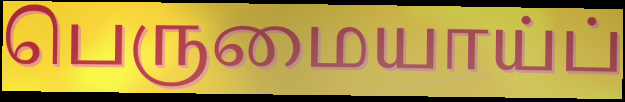
பெருமையாய்ப்